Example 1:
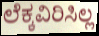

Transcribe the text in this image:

ಲೆಕ್ಕವಿರಿಸಿಲ್ಲ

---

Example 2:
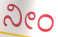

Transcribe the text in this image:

ನೀಂ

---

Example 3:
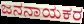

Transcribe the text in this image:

ಜನನಾಯಕರ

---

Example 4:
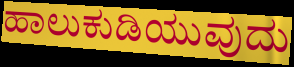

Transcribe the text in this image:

ಹಾಲುಕುಡಿಯುವುದು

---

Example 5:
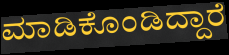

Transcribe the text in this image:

ಮಾಡಿಕೊಂಡಿದ್ದಾರೆ